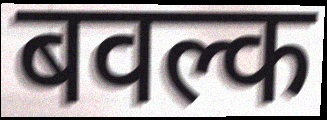
बवल्क